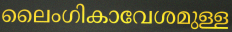
ലൈംഗികാവേശമുള്ള